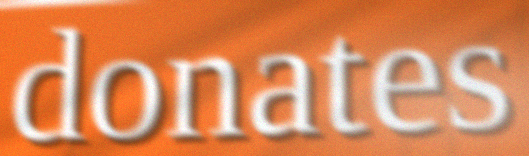
donates